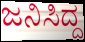
ಜನಿಸಿದ್ದ